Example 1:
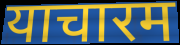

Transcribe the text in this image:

याचारम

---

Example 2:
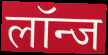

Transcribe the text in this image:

लॉन्ज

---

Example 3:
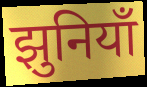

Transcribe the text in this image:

झुनियाँ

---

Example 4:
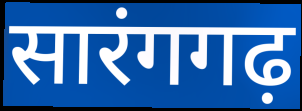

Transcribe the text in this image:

सारंगगढ़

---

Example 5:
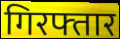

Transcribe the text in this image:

गिरफ्‍तार